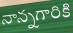
నాన్నగారికి